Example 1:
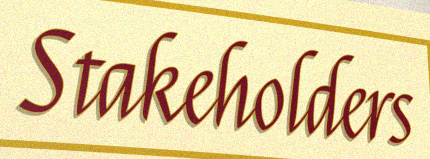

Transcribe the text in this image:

Stakeholders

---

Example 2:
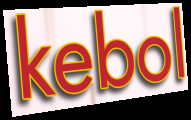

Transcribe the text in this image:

kebol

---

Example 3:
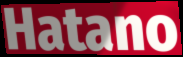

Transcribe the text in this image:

Hatano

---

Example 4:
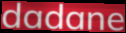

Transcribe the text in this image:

dadane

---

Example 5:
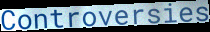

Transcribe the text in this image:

Controversies